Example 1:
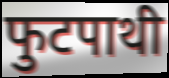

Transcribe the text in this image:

फुटपाथी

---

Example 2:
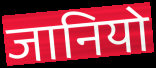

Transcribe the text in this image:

जानियो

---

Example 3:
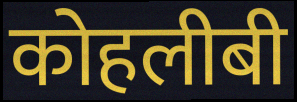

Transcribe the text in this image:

कोहलीबी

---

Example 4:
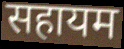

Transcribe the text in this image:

सहायम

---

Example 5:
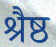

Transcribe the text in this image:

श्रैष्ठ